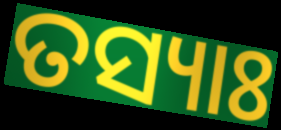
ତସ୍ୟାଃ